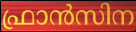
ഫ്രാൻസിന